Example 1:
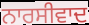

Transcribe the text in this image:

ਨਾਰਸੀਵਾਦ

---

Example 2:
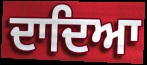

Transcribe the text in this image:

ਦਾਦਿਆ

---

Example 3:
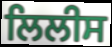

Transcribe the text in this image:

ਲਿਲੀਸ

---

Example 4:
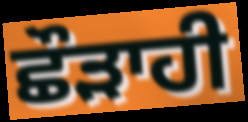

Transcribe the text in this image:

ਛੌੜਾਹੀ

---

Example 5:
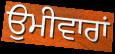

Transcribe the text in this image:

ਉਮੀਵਾਰਾਂ